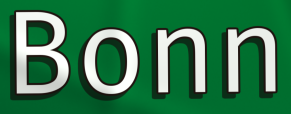
Bonn